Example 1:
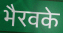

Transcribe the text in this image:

भैरवके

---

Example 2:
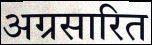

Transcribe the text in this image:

अग्रसारित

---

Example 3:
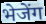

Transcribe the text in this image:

भेजेंग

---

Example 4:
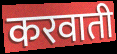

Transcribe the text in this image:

करवाती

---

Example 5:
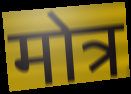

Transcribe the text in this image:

मोत्र